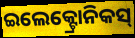
ଇଲେକ୍ଟ୍ରୋନିକସ୍